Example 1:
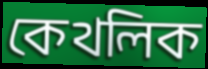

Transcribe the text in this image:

কেথলিক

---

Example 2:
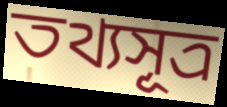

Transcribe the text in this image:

তথ্যসূত্ৰ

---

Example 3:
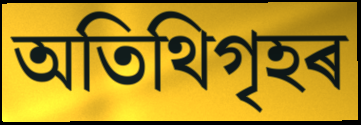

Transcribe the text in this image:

অতিথিগৃহৰ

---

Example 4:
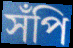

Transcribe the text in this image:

সঁপি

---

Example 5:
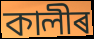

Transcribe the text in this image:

কালীৰ